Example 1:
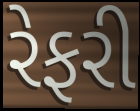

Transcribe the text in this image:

રેફરી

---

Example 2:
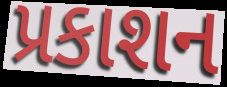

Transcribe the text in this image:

પ્રકાશન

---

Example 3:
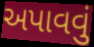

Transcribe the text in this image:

અપાવવું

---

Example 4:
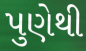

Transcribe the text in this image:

પુણેથી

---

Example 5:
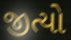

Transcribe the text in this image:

જીત્યો